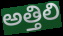
అత్తిలి